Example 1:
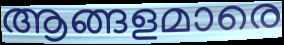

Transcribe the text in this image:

ആങ്ങളമാരെ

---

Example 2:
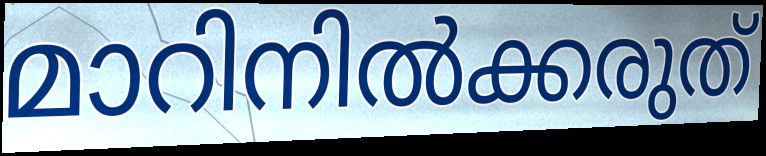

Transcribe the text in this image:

മാറിനിൽക്കരുത്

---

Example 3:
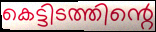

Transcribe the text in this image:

കെട്ടിടത്തിന്റെ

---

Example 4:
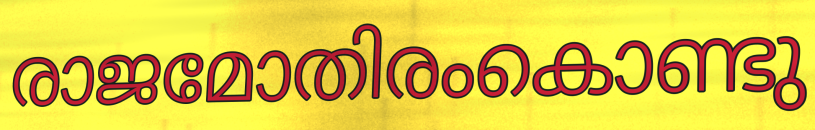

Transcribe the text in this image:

രാജമോതിരംകൊണ്ടു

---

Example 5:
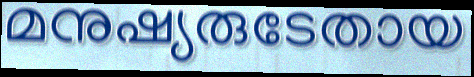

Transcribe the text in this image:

മനുഷ്യരുടേതായ